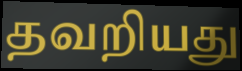
தவறியது